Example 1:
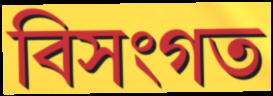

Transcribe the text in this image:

বিসংগত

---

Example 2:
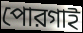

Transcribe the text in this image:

পোরগাই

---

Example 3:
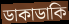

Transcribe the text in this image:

ডাকাডাকি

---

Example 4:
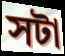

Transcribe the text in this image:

সটা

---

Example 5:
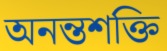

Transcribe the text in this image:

অনন্তশক্তি